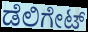
ಡೆಲಿಗೇಟ್